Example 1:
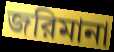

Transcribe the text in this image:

জরিমানা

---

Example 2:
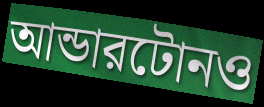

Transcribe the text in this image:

আন্ডারটোনও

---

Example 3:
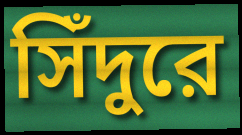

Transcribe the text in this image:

সিঁদুরে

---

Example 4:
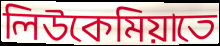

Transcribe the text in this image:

লিউকেমিয়াতে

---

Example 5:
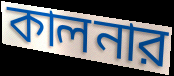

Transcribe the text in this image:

কালনার